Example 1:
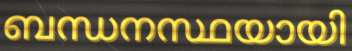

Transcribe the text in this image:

ബന്ധനസ്ഥയായി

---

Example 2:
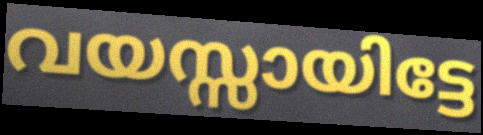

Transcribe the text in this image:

വയസ്സായിട്ടേ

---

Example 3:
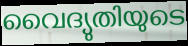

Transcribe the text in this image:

വൈദ്യുതിയുടെ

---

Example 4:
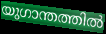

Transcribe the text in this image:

യുഗാന്തത്തിൽ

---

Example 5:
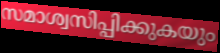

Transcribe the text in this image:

സമാശ്വസിപ്പിക്കുകയും